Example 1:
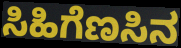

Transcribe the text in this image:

ಸಿಹಿಗೆಣಸಿನ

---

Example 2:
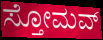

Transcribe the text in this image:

ಸ್ತೋಮವ್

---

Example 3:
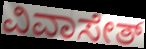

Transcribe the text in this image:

ವಿವಾಸೇತ್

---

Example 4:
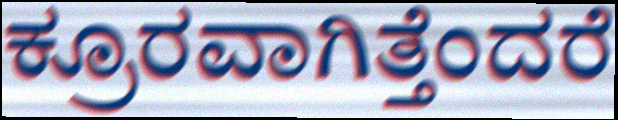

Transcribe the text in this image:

ಕ್ರೂರವಾಗಿತ್ತೆಂದರೆ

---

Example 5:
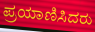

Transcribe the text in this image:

ಪ್ರಯಾಣಿಸಿದರು